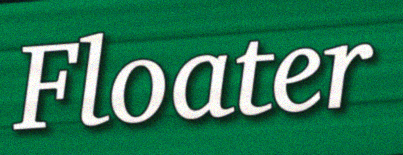
Floater